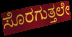
ಸೊರಗುತ್ತಲೇ